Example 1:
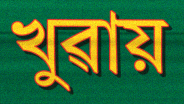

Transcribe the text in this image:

খুৱায়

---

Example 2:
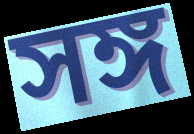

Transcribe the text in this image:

সঙ্গ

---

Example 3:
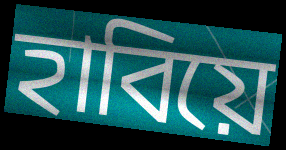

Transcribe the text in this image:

হাবিয়ে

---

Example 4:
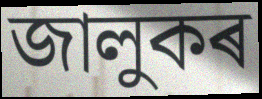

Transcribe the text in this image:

জালুকৰ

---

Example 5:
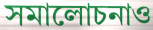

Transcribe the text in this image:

সমালোচনাও